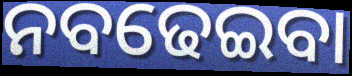
ନବଢେଇବା